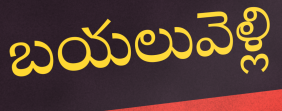
బయలువెళ్లి